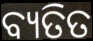
ବ୍ୟତିତ